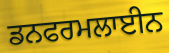
ਡਨਫਰਮਲਾਈਨ